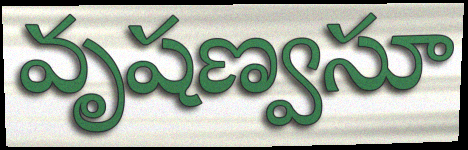
వృషణ్వసూ